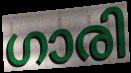
ഗാരി